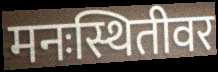
मनःस्थितीवर